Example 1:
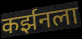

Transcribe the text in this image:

कर्झनला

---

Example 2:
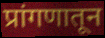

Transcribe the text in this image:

प्रांगणातून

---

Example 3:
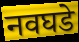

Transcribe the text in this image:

नवघडे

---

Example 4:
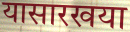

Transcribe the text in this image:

यासारखया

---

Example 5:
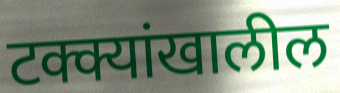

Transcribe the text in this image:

टक्क्यांखालील